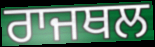
ਰਾਜਥਲ